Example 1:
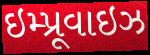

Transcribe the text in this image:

ઇમ્પ્રૂવાઇઝ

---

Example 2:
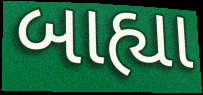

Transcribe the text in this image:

બાહ્યા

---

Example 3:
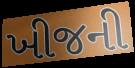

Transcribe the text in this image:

ખીજની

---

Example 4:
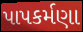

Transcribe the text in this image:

પાપકર્મણા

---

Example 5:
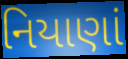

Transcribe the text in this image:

નિયાણાં